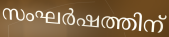
സംഘർഷത്തിന്